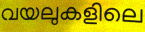
വയലുകളിലെ